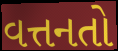
વત્તનતો